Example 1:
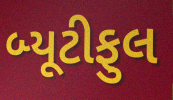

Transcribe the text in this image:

બ્યૂટીફુલ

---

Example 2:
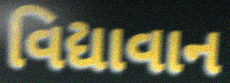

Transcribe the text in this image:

વિદ્યાવાન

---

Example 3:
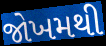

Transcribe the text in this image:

જોખમથી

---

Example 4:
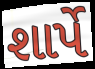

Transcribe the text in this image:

શાર્પે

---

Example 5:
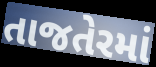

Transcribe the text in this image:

તાજતેરમાં